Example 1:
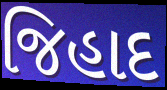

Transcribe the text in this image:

જિહાદ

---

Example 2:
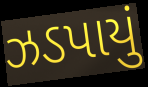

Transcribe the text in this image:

ઝડપાયું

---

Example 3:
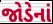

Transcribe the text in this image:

જોડેનાં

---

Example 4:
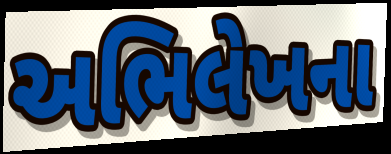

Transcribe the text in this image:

અભિલેખના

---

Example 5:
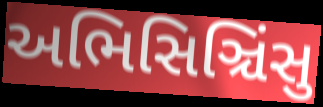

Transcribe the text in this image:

અભિસિઞ્ચિંસુ